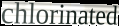
chlorinated